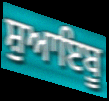
ਸ਼ੁਆਇਬੂ